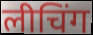
लीचिंग